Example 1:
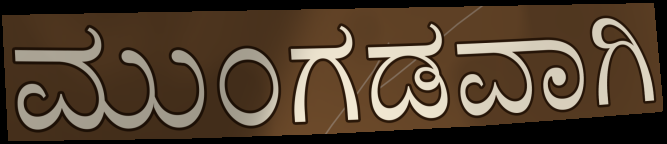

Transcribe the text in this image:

ಮುಂಗಡವಾಗಿ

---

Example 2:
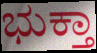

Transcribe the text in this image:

ಭುಕ್ತಾ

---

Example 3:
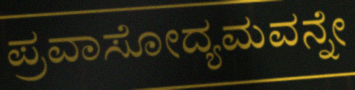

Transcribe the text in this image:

ಪ್ರವಾಸೋದ್ಯಮವನ್ನೇ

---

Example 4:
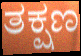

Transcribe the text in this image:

ತಕ್ಷಣ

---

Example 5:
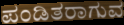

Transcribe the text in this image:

ಪಂಡಿತರಾಗುವ